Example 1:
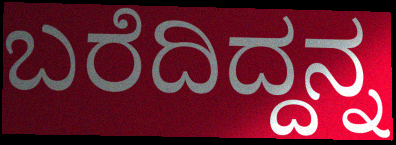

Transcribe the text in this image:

ಬರೆದಿದ್ದನ್ನ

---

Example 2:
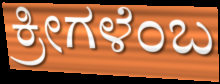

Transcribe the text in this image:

ಕ್ರೀಗಳೆಂಬ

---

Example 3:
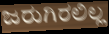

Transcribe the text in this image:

ಜರುಗಿರಲಿಲ್ಲ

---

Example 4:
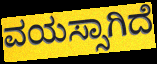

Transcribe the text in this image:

ವಯಸ್ಸಾಗಿದೆ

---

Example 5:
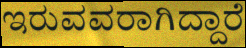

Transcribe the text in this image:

ಇರುವವರಾಗಿದ್ದಾರೆ